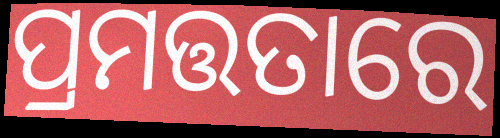
ପ୍ରମତ୍ତତାରେ